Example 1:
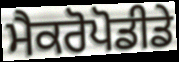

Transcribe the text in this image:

ਮੈਕਰੋਪੋਡੀਡੇ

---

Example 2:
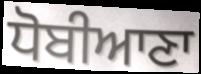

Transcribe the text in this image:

ਧੋਬੀਆਣਾ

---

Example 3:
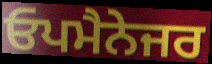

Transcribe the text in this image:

ਓਪਮੈਨੇਜਰ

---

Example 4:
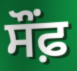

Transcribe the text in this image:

ਸੌਂਫ਼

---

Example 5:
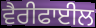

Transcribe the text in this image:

ਵੈਰੀਫਾਈਲ